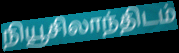
நியூசிலாந்திடம்